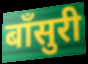
बाँसुरी